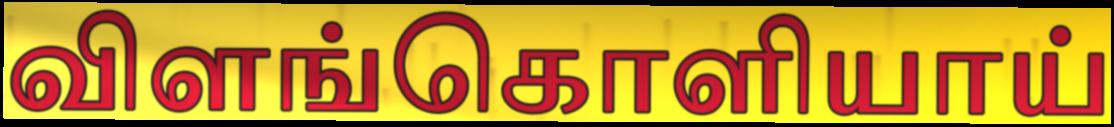
விளங்கொளியாய்